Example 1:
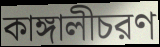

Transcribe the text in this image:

কাঙ্গালীচরণ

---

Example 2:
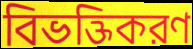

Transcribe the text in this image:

বিভক্তিকরণ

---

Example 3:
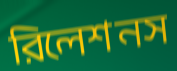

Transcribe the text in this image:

রিলেশনস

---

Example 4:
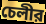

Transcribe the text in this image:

চেলীর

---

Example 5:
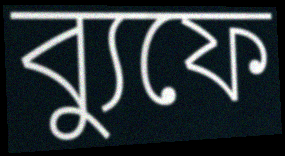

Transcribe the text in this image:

ব্যুফে